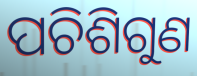
ପଚିଶିଗୁଣ